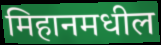
मिहानमधील